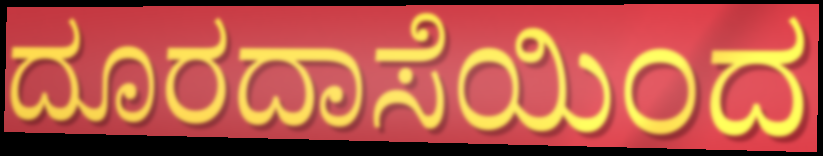
ದೂರದಾಸೆಯಿಂದ